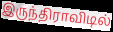
இருந்திராவிடில்